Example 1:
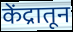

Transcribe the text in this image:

केंद्रातून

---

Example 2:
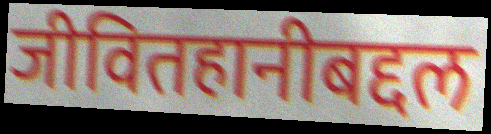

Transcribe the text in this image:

जीवितहानीबद्दल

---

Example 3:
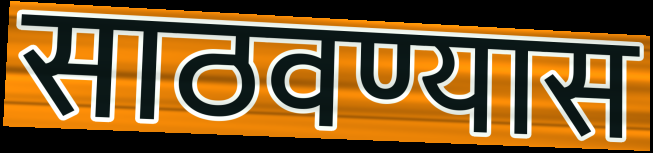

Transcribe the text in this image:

साठवण्यास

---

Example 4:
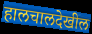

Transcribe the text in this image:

हालचालदेखील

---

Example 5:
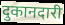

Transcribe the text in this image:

दुकानदारी